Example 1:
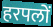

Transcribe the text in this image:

हरपलों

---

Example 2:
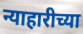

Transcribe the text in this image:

न्याहारीच्या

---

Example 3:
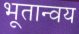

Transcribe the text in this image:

भूतान्वय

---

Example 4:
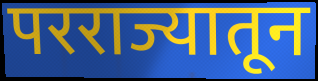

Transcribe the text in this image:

परराज्यातून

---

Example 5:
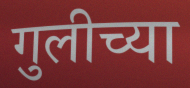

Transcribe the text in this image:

गुलीच्या